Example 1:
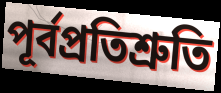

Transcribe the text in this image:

পূর্বপ্রতিশ্রুতি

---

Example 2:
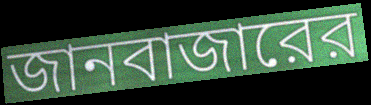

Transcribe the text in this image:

জানবাজারের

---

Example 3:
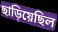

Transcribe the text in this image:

ছাড়িয়েছিল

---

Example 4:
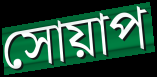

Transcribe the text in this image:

সোয়াপ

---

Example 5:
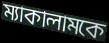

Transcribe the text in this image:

ম্যাকালামকে